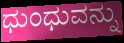
ಧುಂಧುವನ್ನು